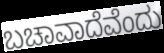
ಬಚಾವಾದೆವೆಂದು